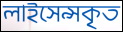
লাইসেন্সকৃত